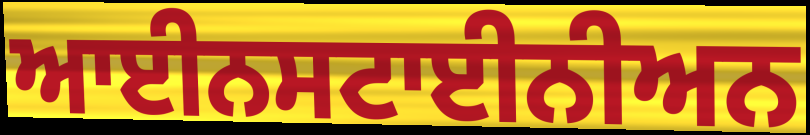
ਆਈਨਸਟਾਈਨੀਅਨ